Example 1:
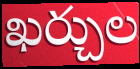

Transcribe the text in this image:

ఖర్చుల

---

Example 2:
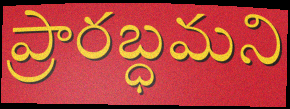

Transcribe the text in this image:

ప్రారబ్ధమని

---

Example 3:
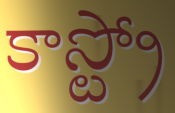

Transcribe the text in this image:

కాస్ట్రో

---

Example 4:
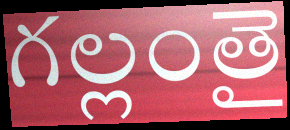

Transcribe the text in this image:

గల్లంతై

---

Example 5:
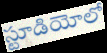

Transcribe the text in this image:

స్టూడియోలో